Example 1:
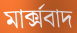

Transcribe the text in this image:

মার্ক্সবাদ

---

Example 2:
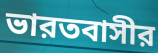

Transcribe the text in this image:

ভারতবাসীর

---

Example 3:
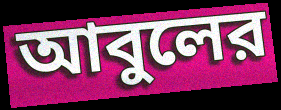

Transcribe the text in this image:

আবুলের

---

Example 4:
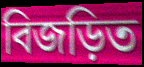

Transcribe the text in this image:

বিজড়িত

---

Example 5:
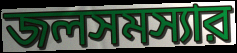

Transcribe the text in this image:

জলসমস্যার